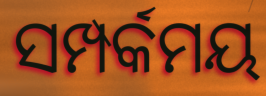
ସମ୍ପର୍କମୟ